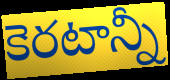
కెరటాన్నీ